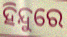
ହିନ୍ଦୁରେ